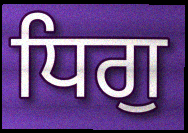
ਧਿਗੁ